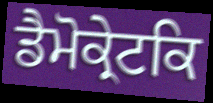
ਡੈਮੋਕ੍ਰੇਟਕਿ